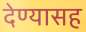
देण्यासह